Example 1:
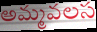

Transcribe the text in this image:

అమ్మవలస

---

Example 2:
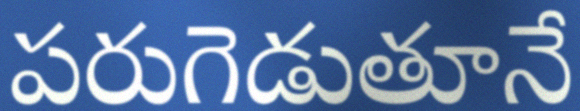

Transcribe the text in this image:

పరుగెడుతూనే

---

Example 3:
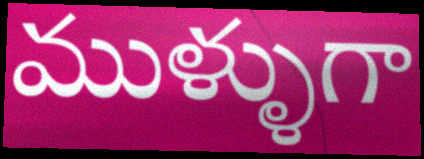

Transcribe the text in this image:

ముళ్ళుగా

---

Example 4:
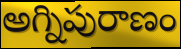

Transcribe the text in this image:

అగ్నిపురాణం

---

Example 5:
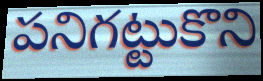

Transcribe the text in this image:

పనిగట్టుకొని